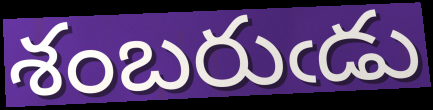
శంబరుఁడు